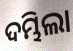
ଦମ୍ଭିଲା